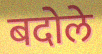
बदोले